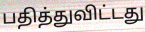
பதித்துவிட்டது